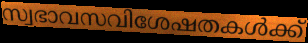
സ്വഭാവസവിശേഷതകൾക്ക്